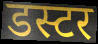
डस्टर